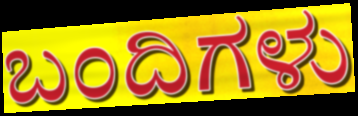
ಬಂದಿಗಳು